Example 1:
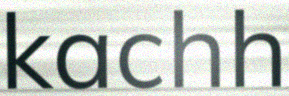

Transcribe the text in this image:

kachh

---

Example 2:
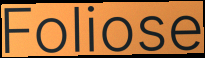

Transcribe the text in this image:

Foliose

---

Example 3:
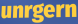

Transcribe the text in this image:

unrgern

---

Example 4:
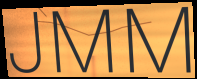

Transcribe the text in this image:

JMM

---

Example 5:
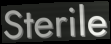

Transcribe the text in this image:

Sterile